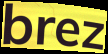
brez